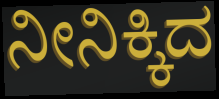
ನೀನಿಕ್ಕಿದ